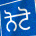
ਨੋਟੋ